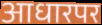
आधारपर